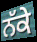
ਨੱਕੇ